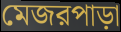
মেজরপাড়া